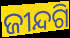
ଜୀନ୍ଦଗି